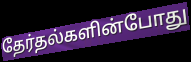
தேர்தல்களின்போது